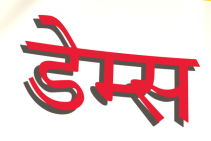
डेम्स